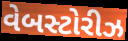
વેબસ્ટોરીઝ